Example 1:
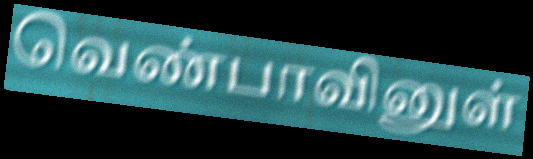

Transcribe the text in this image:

வெண்பாவினுள்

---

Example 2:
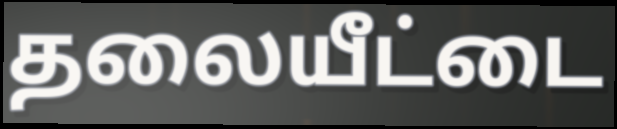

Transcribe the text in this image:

தலையீட்டை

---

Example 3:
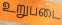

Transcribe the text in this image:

உறுபடை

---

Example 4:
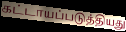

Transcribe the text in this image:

கட்டாயப்படுத்தியது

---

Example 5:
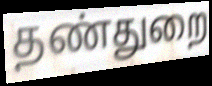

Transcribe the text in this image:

தண்துறை